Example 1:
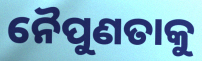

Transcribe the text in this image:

ନୈପୁଣତାକୁ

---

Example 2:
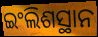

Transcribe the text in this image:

ଇଂଲିଶସ୍ଥାନ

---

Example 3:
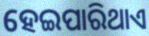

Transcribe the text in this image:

ହେଇପାରିଥାଏ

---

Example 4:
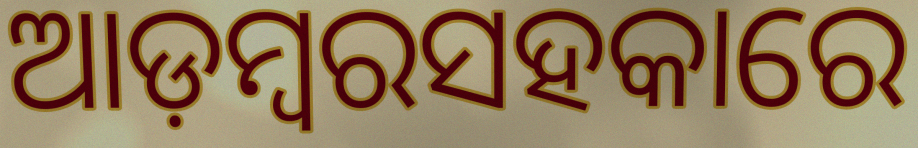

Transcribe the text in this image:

ଆଡ଼ମ୍ବରସହକାରେ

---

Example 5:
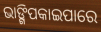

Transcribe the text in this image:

ଭାଙ୍ଗିପକାଇପାରେ